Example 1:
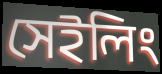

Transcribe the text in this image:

সেইলিং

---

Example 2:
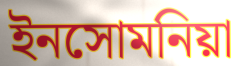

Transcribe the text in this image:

ইনসোমনিয়া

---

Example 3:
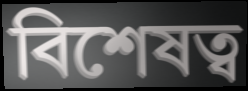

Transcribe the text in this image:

বিশেষত্ব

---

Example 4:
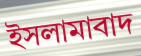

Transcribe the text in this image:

ইসলামাবাদ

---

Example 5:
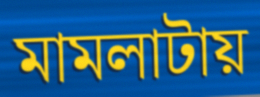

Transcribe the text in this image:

মামলাটায়